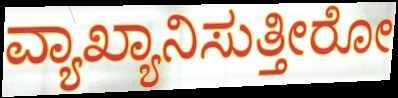
ವ್ಯಾಖ್ಯಾನಿಸುತ್ತೀರೋ